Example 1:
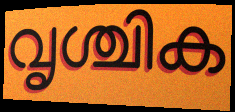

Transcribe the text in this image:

വൃശ്ചിക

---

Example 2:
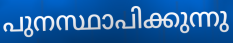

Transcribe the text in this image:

പുനസ്ഥാപിക്കുന്നു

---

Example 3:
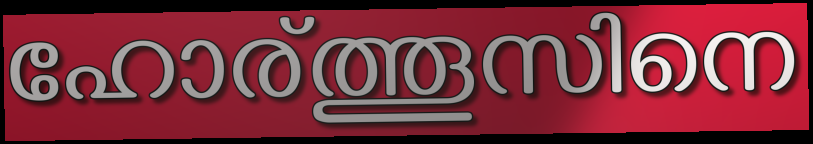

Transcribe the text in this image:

ഹോര്ത്തൂസിനെ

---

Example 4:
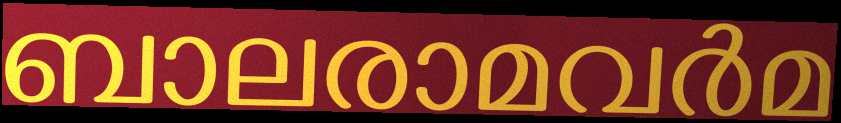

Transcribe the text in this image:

ബാലരാമവർമ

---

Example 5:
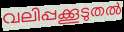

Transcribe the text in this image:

വലിപ്പക്കൂടുതൽ